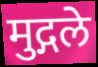
मुद्गले